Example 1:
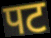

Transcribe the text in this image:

पट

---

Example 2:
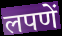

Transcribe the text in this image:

लपणें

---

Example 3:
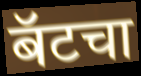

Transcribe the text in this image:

बॅटचा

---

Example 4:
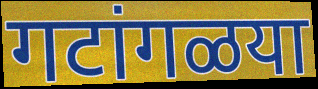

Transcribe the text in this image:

गटांगळया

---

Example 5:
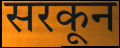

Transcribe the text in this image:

सरकून